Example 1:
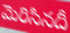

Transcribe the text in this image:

మెరిసినదీ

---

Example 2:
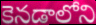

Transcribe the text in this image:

కెనడాలోని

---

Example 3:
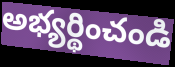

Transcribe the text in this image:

అభ్యర్థించండి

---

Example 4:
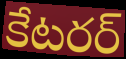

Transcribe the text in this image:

కేటరర్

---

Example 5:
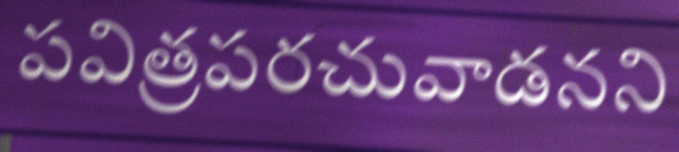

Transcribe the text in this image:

పవిత్రపరచువాడనని